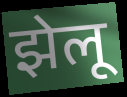
झेलू